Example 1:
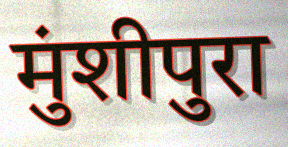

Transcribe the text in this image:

मुंशीपुरा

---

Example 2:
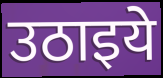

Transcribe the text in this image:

उठाइये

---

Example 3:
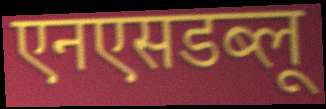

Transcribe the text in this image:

एनएसडब्लू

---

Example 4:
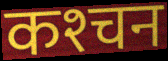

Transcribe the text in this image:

कश्चन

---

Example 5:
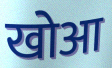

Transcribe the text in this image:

खोआ